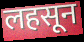
लहसून